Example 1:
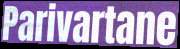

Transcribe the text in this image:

Parivartane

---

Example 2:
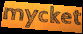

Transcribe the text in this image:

mycket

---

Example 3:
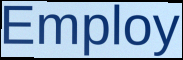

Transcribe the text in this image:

Employ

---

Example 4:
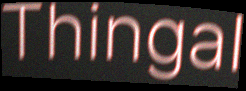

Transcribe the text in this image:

Thingal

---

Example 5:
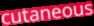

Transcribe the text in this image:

cutaneous